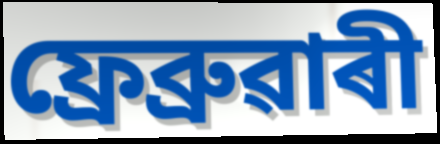
ফ্ৰেব্ৰুৱাৰী